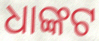
ଧାଙ୍କଟ